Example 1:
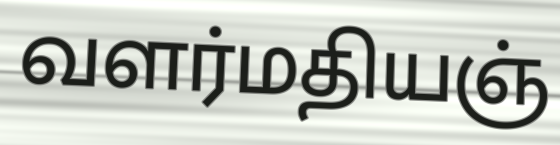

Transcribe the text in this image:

வளர்மதியஞ்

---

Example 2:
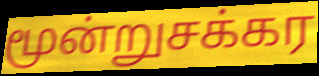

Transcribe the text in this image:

மூன்றுசக்கர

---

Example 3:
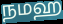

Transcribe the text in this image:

நமஹ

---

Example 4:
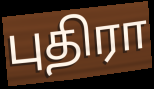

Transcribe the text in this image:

புதிரா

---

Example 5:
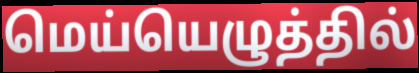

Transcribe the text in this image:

மெய்யெழுத்தில்